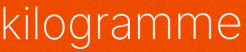
kilogramme